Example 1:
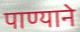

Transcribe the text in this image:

पाण्याने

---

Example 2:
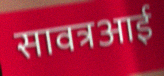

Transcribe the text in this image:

सावत्रआई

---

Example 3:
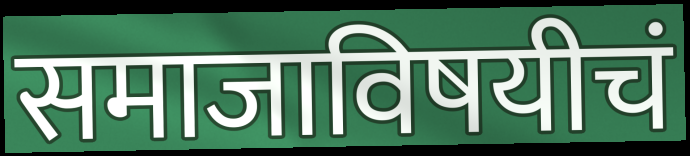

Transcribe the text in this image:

समाजाविषयीचं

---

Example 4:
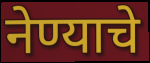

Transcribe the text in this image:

नेण्याचे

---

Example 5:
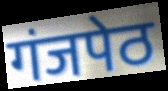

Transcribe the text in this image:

गंजपेठ